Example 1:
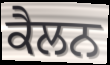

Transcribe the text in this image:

ਕੈਲਨ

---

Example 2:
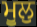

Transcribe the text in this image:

ਮੂਲੁ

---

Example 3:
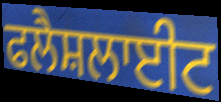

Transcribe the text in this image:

ਫਲੈਸ਼ਲਾਈਟ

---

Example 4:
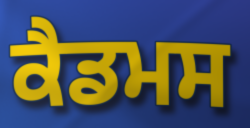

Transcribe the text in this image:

ਕੈਡਮਸ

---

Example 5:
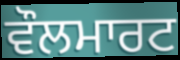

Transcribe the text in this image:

ਵੌਲਮਾਰਟ